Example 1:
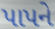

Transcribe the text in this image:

પાપને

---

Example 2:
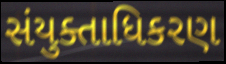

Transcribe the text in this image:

સંયુક્તાધિકરણ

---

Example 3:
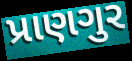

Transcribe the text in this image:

પ્રાણગુર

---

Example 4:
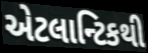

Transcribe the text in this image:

એટલાન્ટિકથી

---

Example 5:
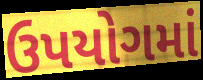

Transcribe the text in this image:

ઉપયોગમાં